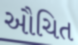
ઔચિત